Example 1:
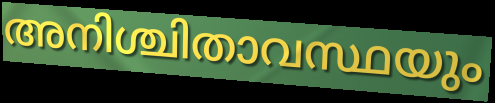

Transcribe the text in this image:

അനിശ്ചിതാവസ്ഥയും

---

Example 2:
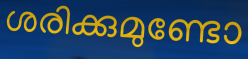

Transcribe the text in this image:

ശരിക്കുമുണ്ടോ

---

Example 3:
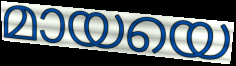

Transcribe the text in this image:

മായയെ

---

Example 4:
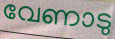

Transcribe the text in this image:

വേണാടു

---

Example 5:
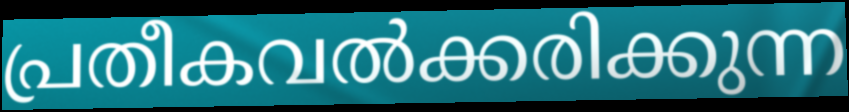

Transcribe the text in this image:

പ്രതീകവൽക്കരിക്കുന്ന